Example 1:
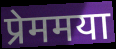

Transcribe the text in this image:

प्रेममया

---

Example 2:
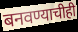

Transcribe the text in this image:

बनवण्याचीही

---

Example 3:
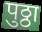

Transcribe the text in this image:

पुठ्ठा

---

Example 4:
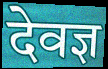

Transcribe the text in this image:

देवज्ञ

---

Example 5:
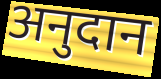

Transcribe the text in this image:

अनुदान